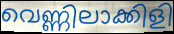
വെണ്ണിലാക്കിളി